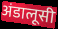
अंडालूसी